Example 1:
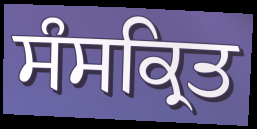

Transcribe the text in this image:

ਸੰਸਕ੍ਰਿਤ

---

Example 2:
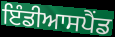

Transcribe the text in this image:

ਇੰਡੀਆਸਪੈਂਡ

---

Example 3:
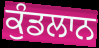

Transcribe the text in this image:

ਕੁੰਡਲਾਨ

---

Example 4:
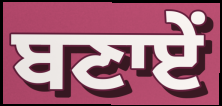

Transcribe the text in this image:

ਬਣਾਏਂ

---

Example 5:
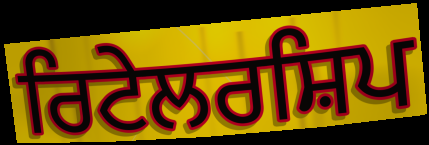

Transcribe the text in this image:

ਰਿਟੇਲਰਸ਼ਿਪ